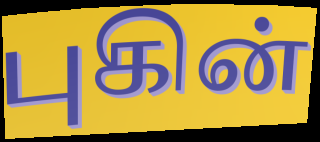
புகின்